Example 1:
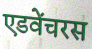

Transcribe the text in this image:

एडवेंचरस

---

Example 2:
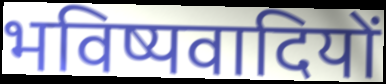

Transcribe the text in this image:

भविष्यवादियों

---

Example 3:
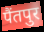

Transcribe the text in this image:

पैंतपुर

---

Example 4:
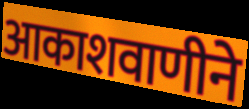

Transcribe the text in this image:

आकाशवाणीने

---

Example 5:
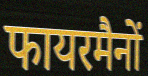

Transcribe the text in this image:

फायरमैनों